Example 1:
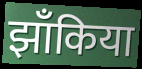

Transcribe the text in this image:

झाँकिया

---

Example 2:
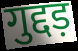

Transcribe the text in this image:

गुद्दड़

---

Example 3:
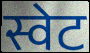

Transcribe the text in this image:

स्वेट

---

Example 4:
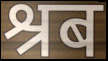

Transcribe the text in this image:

श्रब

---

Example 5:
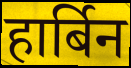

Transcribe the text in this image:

हार्बिन